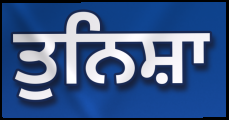
ਤੁਨਿਸ਼ਾ